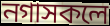
নগাসকলে